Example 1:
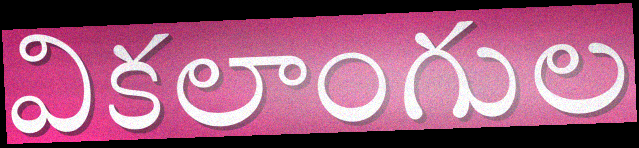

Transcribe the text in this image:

వికలాంగుల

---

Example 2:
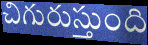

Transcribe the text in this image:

చిగురుస్తుంది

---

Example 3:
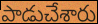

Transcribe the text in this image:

పాడుచేశారు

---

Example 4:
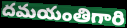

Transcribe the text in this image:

దమయంతిగారి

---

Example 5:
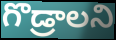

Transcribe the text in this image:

గొడ్రాలని